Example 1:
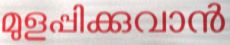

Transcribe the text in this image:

മുളപ്പിക്കുവാൻ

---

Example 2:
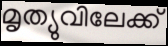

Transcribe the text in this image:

മൃത്യുവിലേക്ക്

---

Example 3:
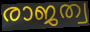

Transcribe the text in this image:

രാജത്വ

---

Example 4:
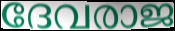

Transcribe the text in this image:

ദേവരാജ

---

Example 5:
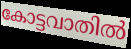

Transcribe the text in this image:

കോട്ടവാതിൽ